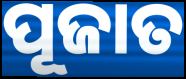
ପୂଜାତ